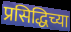
प्रसिद्धिच्या